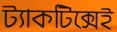
ট্যাকটিক্সেই